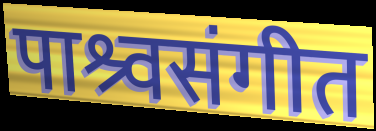
पाश्र्वसंगीत